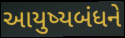
આયુષ્યબંધને